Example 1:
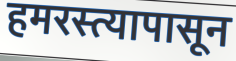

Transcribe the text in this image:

हमरस्त्यापासून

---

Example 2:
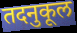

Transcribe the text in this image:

तदनुकूल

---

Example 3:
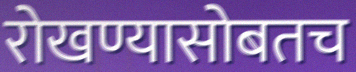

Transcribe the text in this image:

रोखण्यासोबतच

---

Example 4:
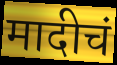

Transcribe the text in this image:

मादीचं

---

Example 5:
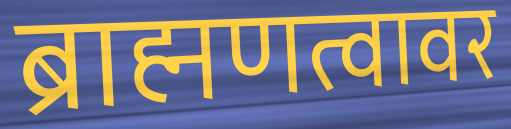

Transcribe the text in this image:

ब्राह्मणत्वावर